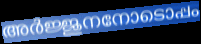
അർജ്ജുനനോടൊപ്പം